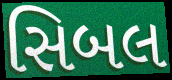
સિબલ